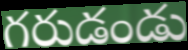
గరుడండు